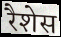
रैशेस